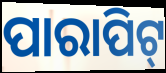
ପାରାପିଟ୍